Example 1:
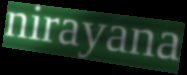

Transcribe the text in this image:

nirayana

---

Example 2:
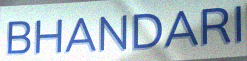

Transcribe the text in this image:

BHANDARI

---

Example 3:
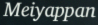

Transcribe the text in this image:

Meiyappan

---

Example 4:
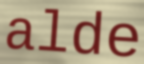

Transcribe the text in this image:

alde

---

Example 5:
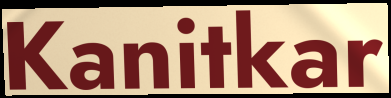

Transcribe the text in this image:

Kanitkar